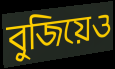
বুজিয়েও